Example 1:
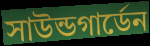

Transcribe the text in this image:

সাউন্ডগার্ডেন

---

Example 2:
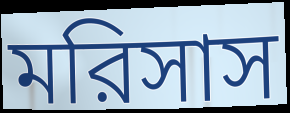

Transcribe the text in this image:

মরিসাস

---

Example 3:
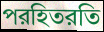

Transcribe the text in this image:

পরহিতরতি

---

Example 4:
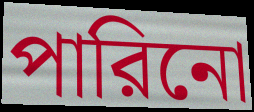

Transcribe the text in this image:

পারিনো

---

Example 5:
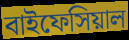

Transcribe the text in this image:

বাইফেসিয়াল